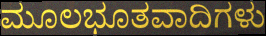
ಮೂಲಭೂತವಾದಿಗಳು